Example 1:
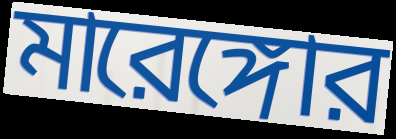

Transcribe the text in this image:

মারেঙ্গোর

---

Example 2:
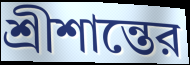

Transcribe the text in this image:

শ্রীশান্তের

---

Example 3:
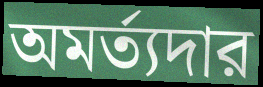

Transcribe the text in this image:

অমর্ত্যদার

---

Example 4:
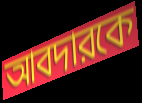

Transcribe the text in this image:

আবদারকে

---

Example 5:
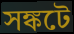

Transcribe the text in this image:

সঙ্কটে